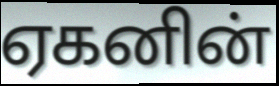
ஏகனின்